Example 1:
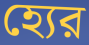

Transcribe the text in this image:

হ্যের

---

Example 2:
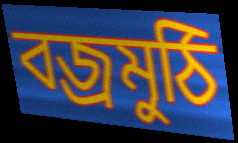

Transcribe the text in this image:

বজ্রমুঠি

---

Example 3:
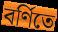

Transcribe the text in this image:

বর্ণিতে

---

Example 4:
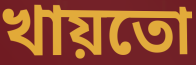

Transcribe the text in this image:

খায়তো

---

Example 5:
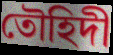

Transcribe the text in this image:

তৌহিদী